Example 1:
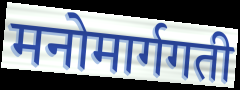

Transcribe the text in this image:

मनोमार्गगती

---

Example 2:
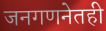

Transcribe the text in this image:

जनगणनेतही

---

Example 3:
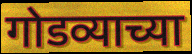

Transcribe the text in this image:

गोडव्याच्या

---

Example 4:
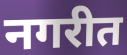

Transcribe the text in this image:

नगरीत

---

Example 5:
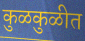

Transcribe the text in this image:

कुळकुळीत